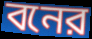
বনের